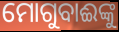
ମୋଗୁବାଈଙ୍କୁ